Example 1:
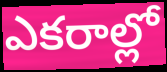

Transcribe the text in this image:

ఎకరాల్లో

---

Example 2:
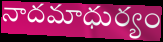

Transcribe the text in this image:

నాదమాధుర్యం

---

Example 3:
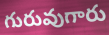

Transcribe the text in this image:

గురువుగారు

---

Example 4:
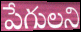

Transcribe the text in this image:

పేగులని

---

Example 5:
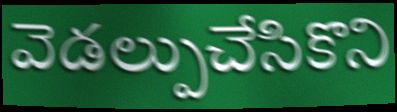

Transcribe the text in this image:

వెడల్పుచేసికొని